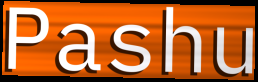
Pashu